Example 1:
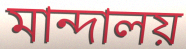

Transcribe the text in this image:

মান্দালয়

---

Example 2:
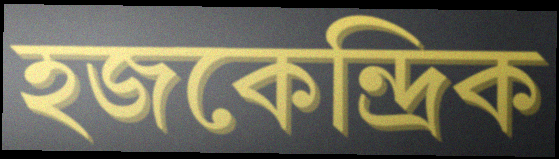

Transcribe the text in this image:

হজকেন্দ্রিক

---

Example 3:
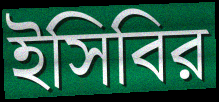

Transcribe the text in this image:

ইসিবির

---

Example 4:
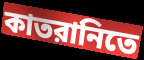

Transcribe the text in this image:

কাতরানিতে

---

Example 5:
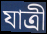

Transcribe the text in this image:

যাত্রী